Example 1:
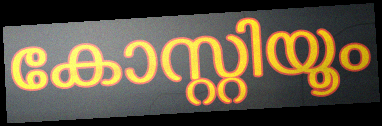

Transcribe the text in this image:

കോസ്റ്റിയൂം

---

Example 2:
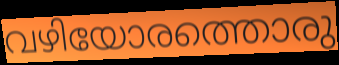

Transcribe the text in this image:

വഴിയോരത്തൊരു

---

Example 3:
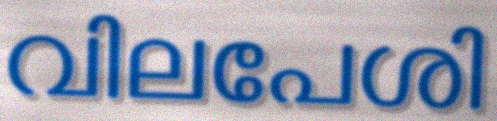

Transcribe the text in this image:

വിലപേശി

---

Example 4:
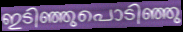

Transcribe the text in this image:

ഇടിഞ്ഞുപൊടിഞ്ഞു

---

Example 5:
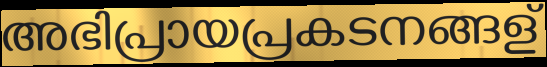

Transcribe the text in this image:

അഭിപ്രായപ്രകടനങ്ങള്